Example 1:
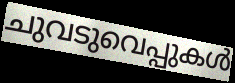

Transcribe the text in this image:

ചുവടുവെപ്പുകൾ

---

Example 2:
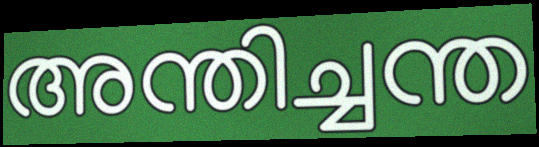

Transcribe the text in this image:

അന്തിച്ചന്ത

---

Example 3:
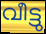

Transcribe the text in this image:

വീട്ടു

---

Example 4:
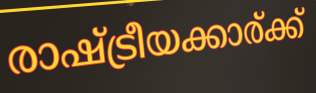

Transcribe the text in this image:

രാഷ്ട്രീയക്കാര്ക്ക്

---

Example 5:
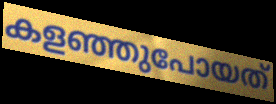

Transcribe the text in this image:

കളഞ്ഞുപോയത്